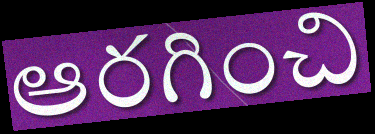
ఆరగించి